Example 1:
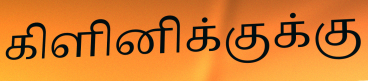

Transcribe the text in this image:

கிளினிக்குக்கு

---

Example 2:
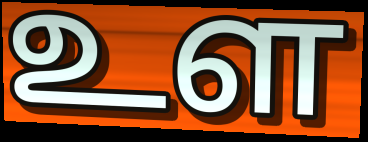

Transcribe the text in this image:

உள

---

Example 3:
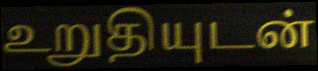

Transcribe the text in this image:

உறுதியுடன்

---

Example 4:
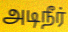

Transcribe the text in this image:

அடிநீர்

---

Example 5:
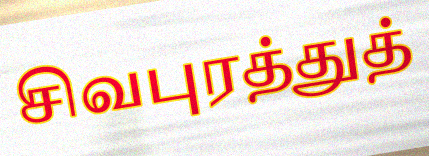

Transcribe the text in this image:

சிவபுரத்துத்